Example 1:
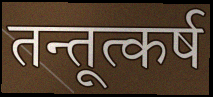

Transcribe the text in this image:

तन्तूत्कर्ष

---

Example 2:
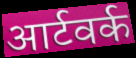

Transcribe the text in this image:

आर्टवर्क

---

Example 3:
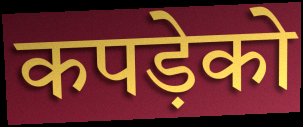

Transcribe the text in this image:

कपड़ेको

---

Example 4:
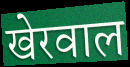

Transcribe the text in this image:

खेरवाल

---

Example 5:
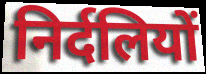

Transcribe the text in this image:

निर्दलियों